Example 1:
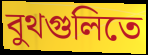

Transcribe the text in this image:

বুথগুলিতে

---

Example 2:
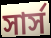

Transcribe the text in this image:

সার্স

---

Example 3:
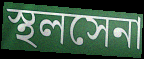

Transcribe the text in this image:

স্থলসেনা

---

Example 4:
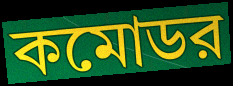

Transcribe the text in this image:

কমোডর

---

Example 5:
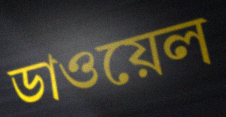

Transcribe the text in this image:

ডাওয়েল